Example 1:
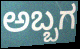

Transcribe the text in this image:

ಅಬ್ಬಗ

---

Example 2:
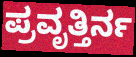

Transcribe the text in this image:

ಪ್ರವೃತ್ತಿರ್ನ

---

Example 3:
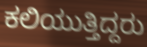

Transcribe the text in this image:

ಕಲಿಯುತ್ತಿದ್ದರು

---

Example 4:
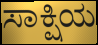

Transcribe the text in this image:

ಸಾಕ್ಷಿಯ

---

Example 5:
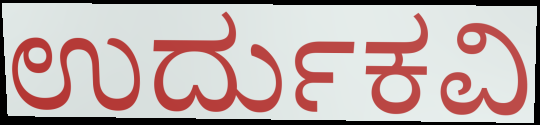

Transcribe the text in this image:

ಉರ್ದುಕವಿ